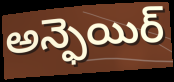
అన్ఫెయిర్